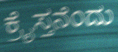
ಕ್ರೈಸ್ತನೆಂದು